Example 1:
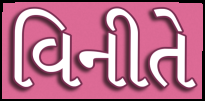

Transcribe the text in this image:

વિનીતે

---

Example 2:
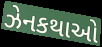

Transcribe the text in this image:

ઝેનકથાઓ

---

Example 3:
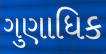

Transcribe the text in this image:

ગુણાધિક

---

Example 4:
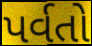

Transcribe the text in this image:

પર્વતો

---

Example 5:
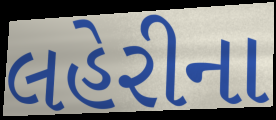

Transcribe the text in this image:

લહેરીના